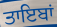
ਤਾਇਬਾਂ